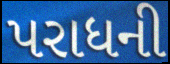
પરાધની